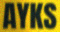
AYKS